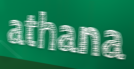
athana